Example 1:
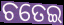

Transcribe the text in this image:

ଚତେଇ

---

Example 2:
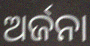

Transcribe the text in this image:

ଅର୍ଜନା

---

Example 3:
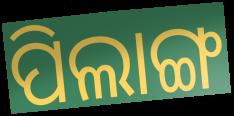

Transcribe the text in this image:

ପିଲାଙ୍ଗ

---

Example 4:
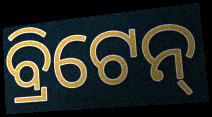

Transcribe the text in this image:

ବ୍ରିଟେନ୍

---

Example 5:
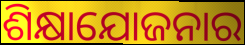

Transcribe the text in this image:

ଶିକ୍ଷାଯୋଜନାର